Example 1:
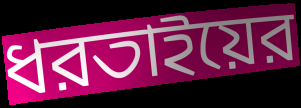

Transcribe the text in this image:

ধরতাইয়ের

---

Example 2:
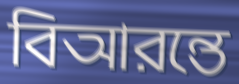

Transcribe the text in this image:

বিআরন্তে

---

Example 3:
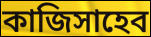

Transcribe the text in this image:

কাজিসাহেব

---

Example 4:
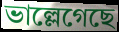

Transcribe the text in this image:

ভাল্লেগেছে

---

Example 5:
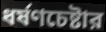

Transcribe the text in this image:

ধর্ষণচেষ্টার